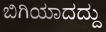
ಬಿಗಿಯಾದದ್ದು